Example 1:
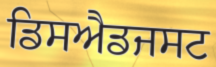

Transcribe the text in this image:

ਡਿਸਐਡਜਸਟ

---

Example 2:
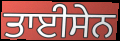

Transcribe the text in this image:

ਤਾਈਸੇਨ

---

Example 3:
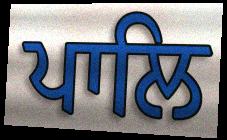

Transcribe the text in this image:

ਪਾਲਿ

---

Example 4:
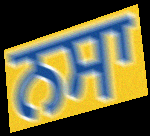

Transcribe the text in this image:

ਨਸਾ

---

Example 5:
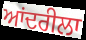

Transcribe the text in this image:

ਆਂਦਰੀਲਾ